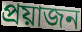
প্রয়াজন